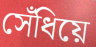
সেঁধিয়ে